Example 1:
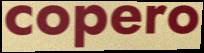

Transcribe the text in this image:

copero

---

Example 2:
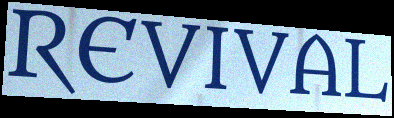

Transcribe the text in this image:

REVIVAL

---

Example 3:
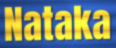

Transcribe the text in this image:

Nataka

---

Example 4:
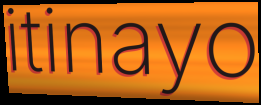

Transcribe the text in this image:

itinayo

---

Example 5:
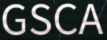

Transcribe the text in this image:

GSCA